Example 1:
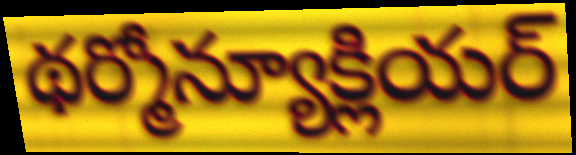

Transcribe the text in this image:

థర్మోన్యూక్లియర్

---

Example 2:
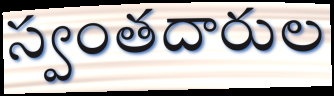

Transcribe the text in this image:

స్వంతదారుల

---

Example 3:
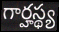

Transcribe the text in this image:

గార్హస్థ్య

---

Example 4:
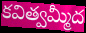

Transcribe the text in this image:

కవిత్వమ్మీద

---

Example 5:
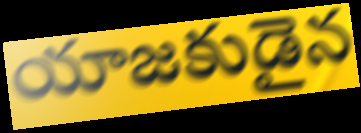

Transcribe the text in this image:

యాజకుడైన